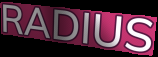
RADIUS